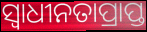
ସ୍ବାଧୀନତାପ୍ରାପ୍ତ